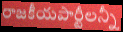
రాజకీయపార్టీలన్నీ